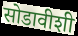
सोडावीशी